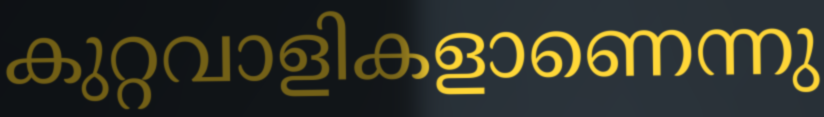
കുറ്റവാളികളാണെന്നു